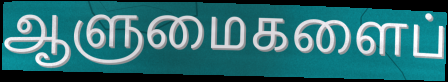
ஆளுமைகளைப்